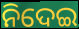
ନିଦେଇ